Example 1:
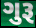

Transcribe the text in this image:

ગુરૂ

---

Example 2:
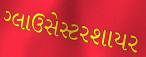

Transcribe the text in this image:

ગ્લાઉસેસ્ટરશાયર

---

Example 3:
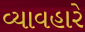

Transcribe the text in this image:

વ્યાવહારે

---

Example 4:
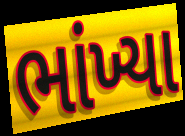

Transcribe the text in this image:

ભાંખ્યા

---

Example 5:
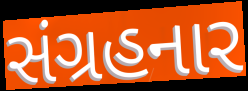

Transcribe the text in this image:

સંગ્રહનાર